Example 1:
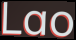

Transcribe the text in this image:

Lao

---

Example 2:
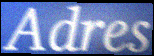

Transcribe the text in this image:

Adres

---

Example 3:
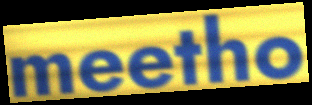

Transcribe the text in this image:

meetho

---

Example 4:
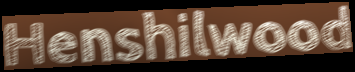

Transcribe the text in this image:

Henshilwood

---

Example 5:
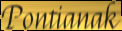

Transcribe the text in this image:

Pontianak